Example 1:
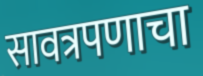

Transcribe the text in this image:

सावत्रपणाचा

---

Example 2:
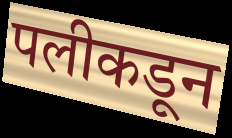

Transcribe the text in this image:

पलीकडून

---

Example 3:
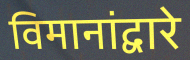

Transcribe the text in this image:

विमानांद्वारे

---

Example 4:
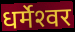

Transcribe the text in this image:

धर्मेश्वर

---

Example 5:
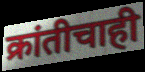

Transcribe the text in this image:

क्रांतीचाही